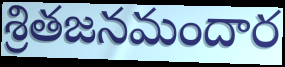
శ్రితజనమందార